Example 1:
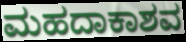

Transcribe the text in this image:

ಮಹದಾಕಾಶವ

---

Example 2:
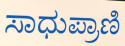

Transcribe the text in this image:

ಸಾಧುಪ್ರಾಣಿ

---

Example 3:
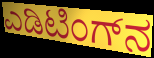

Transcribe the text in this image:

ಎಡಿಟಿಂಗ್‌ನ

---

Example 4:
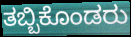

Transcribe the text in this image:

ತಬ್ಬಿಕೊಂಡರು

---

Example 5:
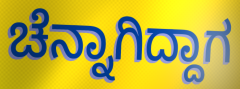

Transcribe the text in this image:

ಚೆನ್ನಾಗಿದ್ದಾಗ